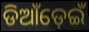
ଡିଆଁଡ଼େଇଁ